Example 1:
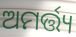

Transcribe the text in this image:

ଅମର୍ତ୍ତ୍ୟ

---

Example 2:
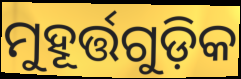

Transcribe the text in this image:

ମୁହୂର୍ତ୍ତଗୁଡ଼ିକ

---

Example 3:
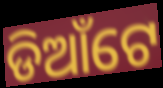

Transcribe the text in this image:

ଡିଆଁଟେ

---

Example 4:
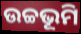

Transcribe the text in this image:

ଉଚ୍ଚଭୂମି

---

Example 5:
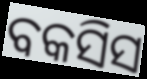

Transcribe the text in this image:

ବକସିସ